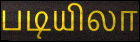
படியிலா